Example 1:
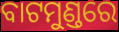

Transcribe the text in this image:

ବାଟମୁଣ୍ଡରେ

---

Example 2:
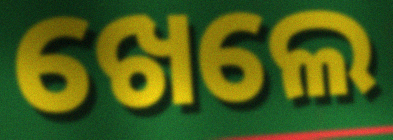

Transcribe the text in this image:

ଖେଲେ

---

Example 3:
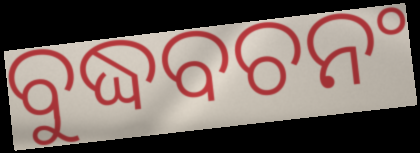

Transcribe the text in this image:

ବୁଦ୍ଧବଚନଂ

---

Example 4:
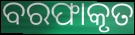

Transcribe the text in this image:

ବରଫାକୃତ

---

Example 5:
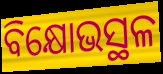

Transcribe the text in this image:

ବିକ୍ଷୋଭସ୍ଥଳ